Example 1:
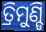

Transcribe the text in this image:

ତ୍ରିମୁଣ୍ଡି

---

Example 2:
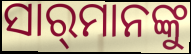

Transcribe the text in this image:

ସାର୍‌ମାନଙ୍କୁ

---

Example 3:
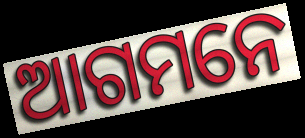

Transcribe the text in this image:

ଆଗମନେ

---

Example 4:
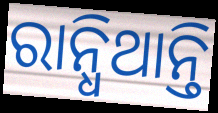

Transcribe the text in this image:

ରାନ୍ଧିଥାନ୍ତି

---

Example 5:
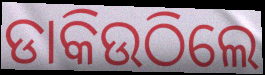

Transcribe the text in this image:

ଡାକିଉଠିଲେ